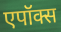
एपॉक्स